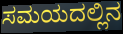
ಸಮಯದಲ್ಲಿನ